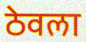
ठेवला